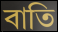
বাতি